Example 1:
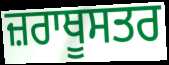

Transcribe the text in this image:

ਜ਼ਰਾਥੂਸਤਰ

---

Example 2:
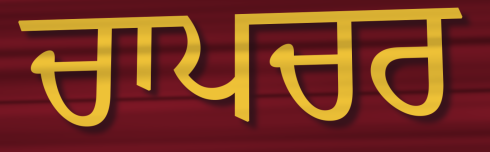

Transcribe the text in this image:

ਚਾਪਚਰ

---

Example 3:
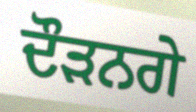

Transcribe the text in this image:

ਦੌੜਨਗੇ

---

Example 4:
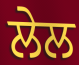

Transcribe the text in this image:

ਲੇਲ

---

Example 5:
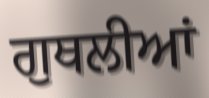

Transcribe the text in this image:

ਗੁਥਲੀਆਂ